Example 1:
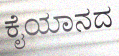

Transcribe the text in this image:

ಕೈಯಾನದ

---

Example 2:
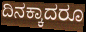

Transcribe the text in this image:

ದಿನಕ್ಕಾದರೂ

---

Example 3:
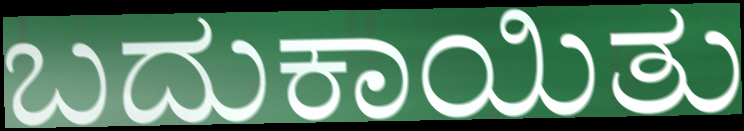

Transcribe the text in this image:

ಬದುಕಾಯಿತು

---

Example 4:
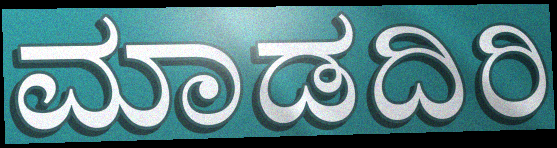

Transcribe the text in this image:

ಮಾಡದಿರಿ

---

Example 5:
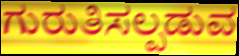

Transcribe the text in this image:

ಗುರುತಿಸಲ್ಪಡುವ